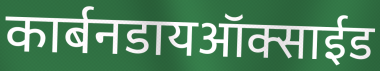
कार्बनडायऑक्साईड